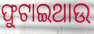
ଫୁଟାଇଥାଉ